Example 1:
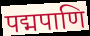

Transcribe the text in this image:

पद्मपाणि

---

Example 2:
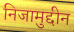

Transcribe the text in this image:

निजामुद्दीन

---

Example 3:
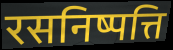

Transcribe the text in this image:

रसनिष्पत्ति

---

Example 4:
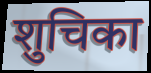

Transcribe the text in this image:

शुचिका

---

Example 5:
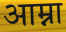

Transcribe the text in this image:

आम्ना